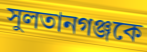
সুলতানগঞ্জকে